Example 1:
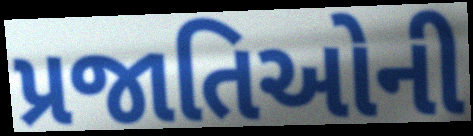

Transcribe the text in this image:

પ્રજાતિઓની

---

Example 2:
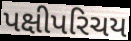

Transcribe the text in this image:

પક્ષીપરિચય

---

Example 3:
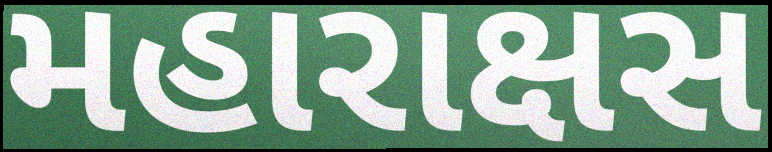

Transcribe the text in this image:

મહારાક્ષસ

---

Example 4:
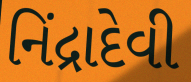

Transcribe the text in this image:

નિંદ્રાદેવી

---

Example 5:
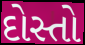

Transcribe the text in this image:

દોસ્તો